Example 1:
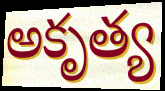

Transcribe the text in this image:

అకృత్య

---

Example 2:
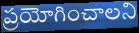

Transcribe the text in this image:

ప్రయోగించాలని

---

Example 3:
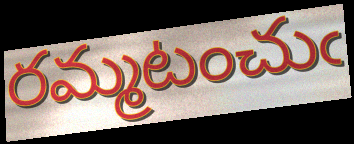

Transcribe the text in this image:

రమ్మటంచుఁ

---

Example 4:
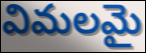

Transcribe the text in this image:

విమలమై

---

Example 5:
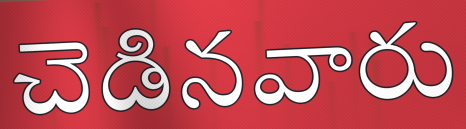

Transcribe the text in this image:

చెడినవారు